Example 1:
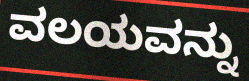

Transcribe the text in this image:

ವಲಯವನ್ನು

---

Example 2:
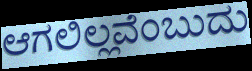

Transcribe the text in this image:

ಆಗಲಿಲ್ಲವೆಂಬುದು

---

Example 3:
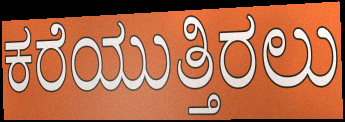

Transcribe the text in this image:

ಕರೆಯುತ್ತಿರಲು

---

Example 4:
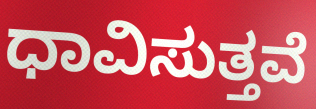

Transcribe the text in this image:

ಧಾವಿಸುತ್ತವೆ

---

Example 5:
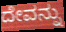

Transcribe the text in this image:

ದೇವನ್ನು